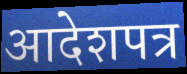
आदेशपत्र